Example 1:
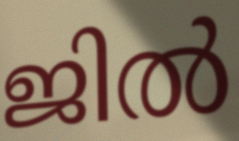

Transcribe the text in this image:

ജിൽ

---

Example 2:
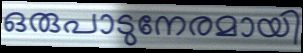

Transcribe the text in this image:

ഒരുപാടുനേരമായി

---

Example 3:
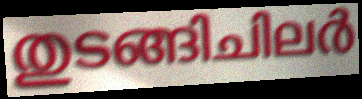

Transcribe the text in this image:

തുടങ്ങിചിലർ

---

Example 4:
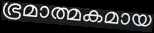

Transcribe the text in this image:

ഭ്രമാത്മകമായ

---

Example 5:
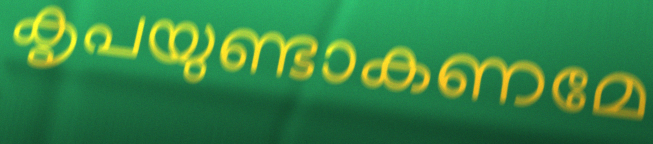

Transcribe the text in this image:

കൃപയുണ്ടാകണമേ